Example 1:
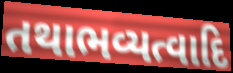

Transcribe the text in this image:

તથાભવ્યત્વાદિ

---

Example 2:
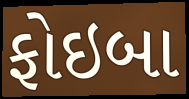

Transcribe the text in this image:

ફોઇબા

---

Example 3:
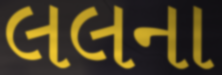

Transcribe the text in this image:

લલના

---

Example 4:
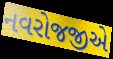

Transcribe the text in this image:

નવરોજજીએ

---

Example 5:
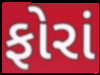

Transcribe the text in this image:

ફોરાં